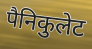
पैनिकुलेट